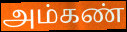
அம்கண்